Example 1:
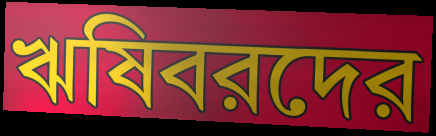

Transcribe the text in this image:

ঋষিবরদের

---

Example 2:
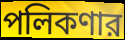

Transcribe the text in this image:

পলিকণার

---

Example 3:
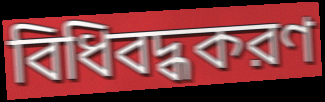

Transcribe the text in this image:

বিধিবদ্ধকরণ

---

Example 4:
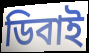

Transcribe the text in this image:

ডিবাই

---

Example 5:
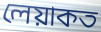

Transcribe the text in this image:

লেয়াকত